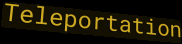
Teleportation